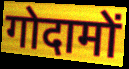
गोदामों